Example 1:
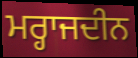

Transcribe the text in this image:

ਮਰ੍ਹਾਜਦੀਨ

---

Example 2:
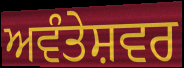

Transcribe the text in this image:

ਅਵੰਤੇਸ਼ਵਰ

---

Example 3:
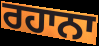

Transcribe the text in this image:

ਰਹਾਨਾ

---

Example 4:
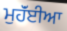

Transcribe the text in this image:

ਮੁਹੱਂਈਆ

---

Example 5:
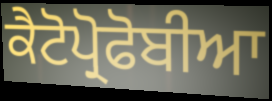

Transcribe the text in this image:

ਕੈਟੋਪ੍ਰੋਫੋਬੀਆ